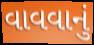
વાવવાનું